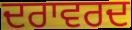
ਦਰਾਵਰਦ